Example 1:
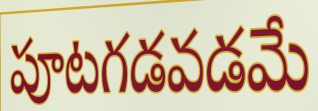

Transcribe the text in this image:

పూటగడవడమే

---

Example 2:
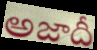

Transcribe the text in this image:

అజాదీ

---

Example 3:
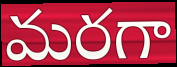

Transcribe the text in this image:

మరగా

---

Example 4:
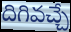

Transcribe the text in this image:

దిగివచ్చే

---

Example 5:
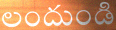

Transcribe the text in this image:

లందుండి